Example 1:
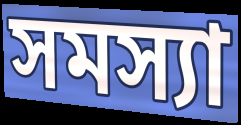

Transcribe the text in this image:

সমস্যা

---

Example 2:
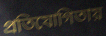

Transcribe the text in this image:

প্রতিযোগিতায়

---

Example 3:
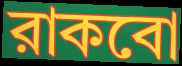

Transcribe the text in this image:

রাকবো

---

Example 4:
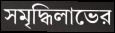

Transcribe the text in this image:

সমৃদ্ধিলাভের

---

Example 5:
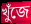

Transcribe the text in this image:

খুঁজে